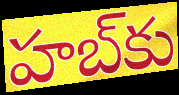
హబ్‌కు